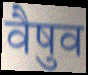
वैषुव